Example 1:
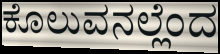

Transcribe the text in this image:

ಕೊಲುವನಲ್ಲೆಂದ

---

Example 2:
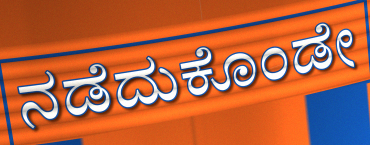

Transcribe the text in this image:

ನಡೆದುಕೊಂಡೇ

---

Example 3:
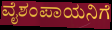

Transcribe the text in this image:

ವೈಶಂಪಾಯನಿಗೆ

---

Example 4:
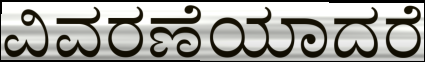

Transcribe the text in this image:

ವಿವರಣೆಯಾದರೆ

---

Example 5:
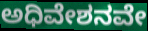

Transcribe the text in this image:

ಅಧಿವೇಶನವೇ